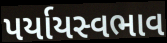
પર્યાયસ્વભાવ